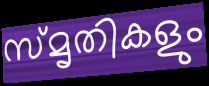
സ്മൃതികളും